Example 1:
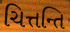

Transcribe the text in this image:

ચિત્તન્તિ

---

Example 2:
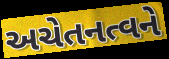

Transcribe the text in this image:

અચેતનત્વને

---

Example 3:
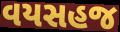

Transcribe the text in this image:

વયસહજ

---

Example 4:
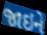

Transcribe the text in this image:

જાઇને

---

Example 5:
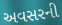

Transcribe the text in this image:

અવસરની